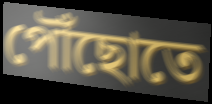
পৌঁছোতে